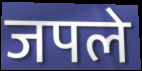
जपले